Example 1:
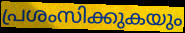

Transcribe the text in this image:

പ്രശംസിക്കുകയും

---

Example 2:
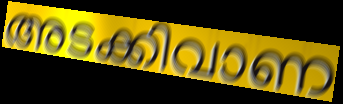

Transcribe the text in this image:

അടക്കിവാണ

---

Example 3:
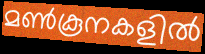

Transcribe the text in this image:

മൺകൂനകളിൽ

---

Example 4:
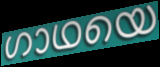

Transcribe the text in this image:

ഗാഥയെ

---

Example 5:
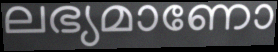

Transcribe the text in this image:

ലഭ്യമാണോ